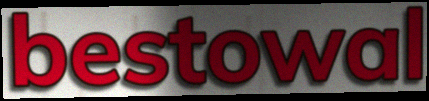
bestowal